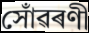
সোঁৱৰণী